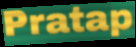
Pratap